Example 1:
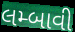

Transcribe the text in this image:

લમ્બાવી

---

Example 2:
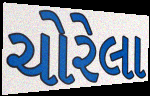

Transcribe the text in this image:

ચોરેલા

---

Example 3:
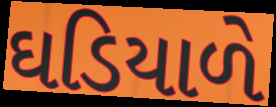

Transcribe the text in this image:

ઘડિયાળે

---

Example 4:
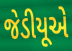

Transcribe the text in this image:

જેડીયૂએ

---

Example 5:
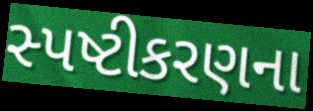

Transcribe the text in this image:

સ્પષ્ટીકરણના